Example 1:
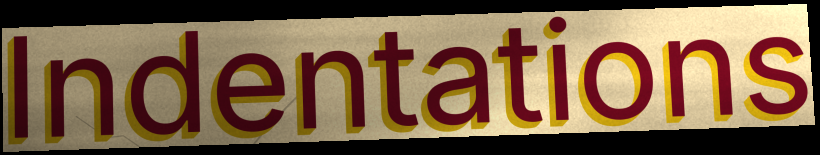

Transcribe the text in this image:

Indentations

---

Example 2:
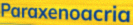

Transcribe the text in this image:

Paraxenoacria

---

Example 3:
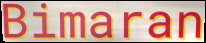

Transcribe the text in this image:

Bimaran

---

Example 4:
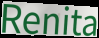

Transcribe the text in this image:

Renita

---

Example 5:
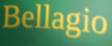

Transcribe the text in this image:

Bellagio